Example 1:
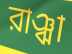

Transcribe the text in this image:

রাঞ্ঝা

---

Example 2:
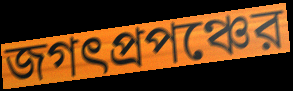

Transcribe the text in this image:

জগৎপ্রপঞ্চের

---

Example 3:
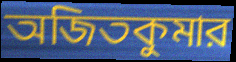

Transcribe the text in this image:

অজিতকুমার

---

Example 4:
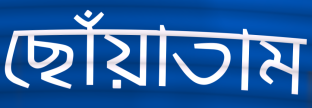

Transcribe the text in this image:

ছোঁয়াতাম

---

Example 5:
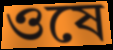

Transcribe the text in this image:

ওষে